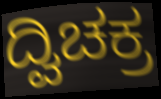
ದ್ವಿಚಕ್ರ